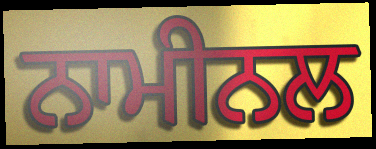
ਨਾਮੀਨਲ